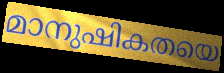
മാനുഷികതയെ